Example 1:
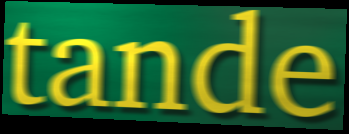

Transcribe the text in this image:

tande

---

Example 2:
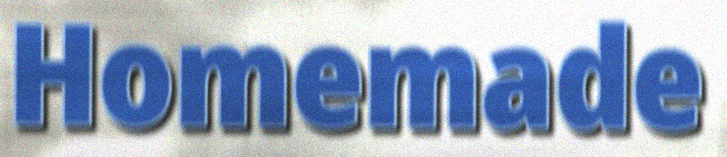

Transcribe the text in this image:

Homemade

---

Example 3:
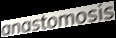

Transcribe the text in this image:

anastomosis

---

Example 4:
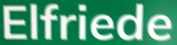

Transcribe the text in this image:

Elfriede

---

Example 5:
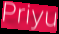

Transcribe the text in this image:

Priyu